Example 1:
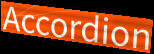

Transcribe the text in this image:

Accordion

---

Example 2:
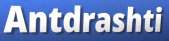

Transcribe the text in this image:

Antdrashti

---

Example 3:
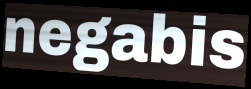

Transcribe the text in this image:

negabis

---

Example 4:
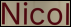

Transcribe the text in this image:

Nicol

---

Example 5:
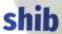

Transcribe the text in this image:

shib